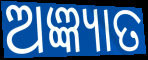
ଅଜ୍ଞ୍ୟାତ